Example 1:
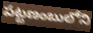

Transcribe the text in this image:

పట్టణంబులోని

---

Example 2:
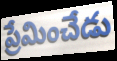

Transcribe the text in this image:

ప్రేమించేడు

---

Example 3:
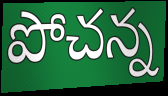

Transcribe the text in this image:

పోచన్న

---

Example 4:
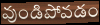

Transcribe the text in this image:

వుండిపోవడం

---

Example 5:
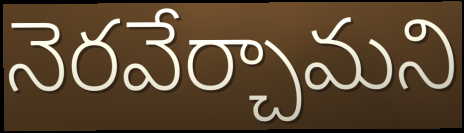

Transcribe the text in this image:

నెరవేర్చామని